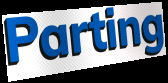
Parting